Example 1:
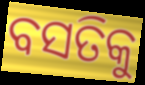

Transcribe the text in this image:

ବସତିକୁ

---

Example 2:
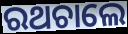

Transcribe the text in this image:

ରଥଚାଲେ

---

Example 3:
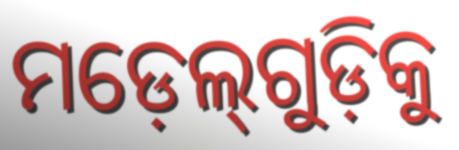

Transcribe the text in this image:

ମଡ଼େଲ୍‌ଗୁଡ଼ିକୁ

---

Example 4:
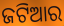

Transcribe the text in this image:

ଜଟିଆର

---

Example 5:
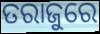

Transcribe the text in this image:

ତରାଜୁରେ